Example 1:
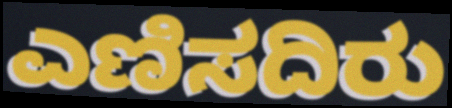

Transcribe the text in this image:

ಎಣಿಸದಿರು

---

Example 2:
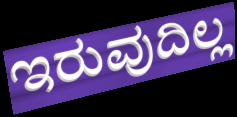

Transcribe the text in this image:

ಇರುವುದಿಲ್ಲ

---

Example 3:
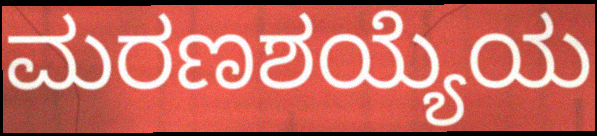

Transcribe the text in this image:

ಮರಣಶಯ್ಯೆಯ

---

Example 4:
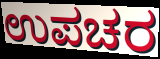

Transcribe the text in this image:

ಉಪಚರ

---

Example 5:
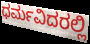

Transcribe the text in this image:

ಧರ್ಮವಿದರಲ್ಲಿ